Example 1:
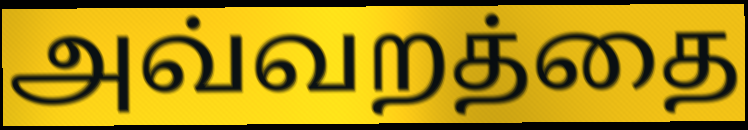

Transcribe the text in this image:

அவ்வறத்தை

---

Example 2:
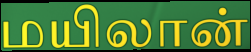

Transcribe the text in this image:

மயிலான்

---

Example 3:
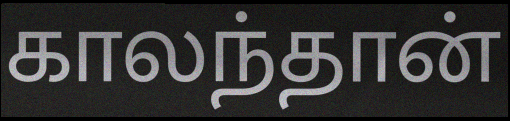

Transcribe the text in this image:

காலந்தான்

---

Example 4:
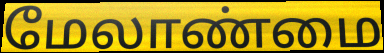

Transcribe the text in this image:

மேலாண்மை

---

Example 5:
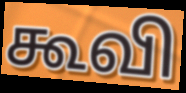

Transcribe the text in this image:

கூவி